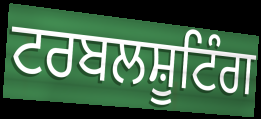
ਟਰਬਲਸ਼ੂਟਿੰਗ